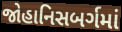
જોહાનિસબર્ગમાં